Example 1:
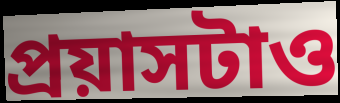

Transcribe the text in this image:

প্রয়াসটাও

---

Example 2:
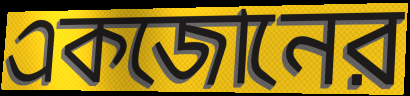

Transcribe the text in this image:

একজোনের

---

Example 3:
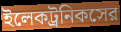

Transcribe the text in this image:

ইলেকট্রনিকসের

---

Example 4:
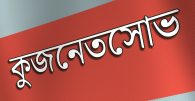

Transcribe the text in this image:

কুজনেতসোভ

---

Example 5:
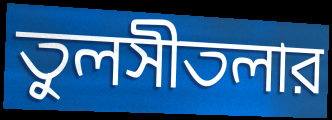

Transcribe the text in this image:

তুলসীতলার